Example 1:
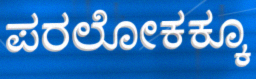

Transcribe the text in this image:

ಪರಲೋಕಕ್ಕೂ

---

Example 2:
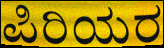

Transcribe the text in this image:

ಪಿರಿಯರ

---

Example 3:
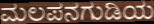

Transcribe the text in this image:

ಮಲಪನಗುಡಿಯ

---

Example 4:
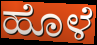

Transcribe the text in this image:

ಹೊಳೆ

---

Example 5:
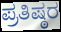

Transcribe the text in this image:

ಪ್ರತಿಷ್ಠರ